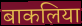
बाकलिया